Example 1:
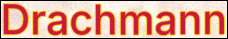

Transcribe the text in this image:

Drachmann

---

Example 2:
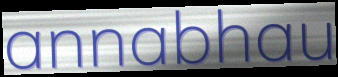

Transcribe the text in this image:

annabhau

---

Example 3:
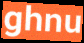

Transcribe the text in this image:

ghnu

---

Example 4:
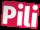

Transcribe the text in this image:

Pili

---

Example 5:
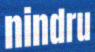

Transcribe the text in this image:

nindru